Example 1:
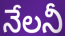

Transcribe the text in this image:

నేలనీ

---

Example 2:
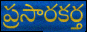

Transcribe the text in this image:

ప్రసారకర్త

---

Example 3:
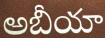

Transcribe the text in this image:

అబీయా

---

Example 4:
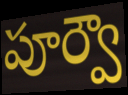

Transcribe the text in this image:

పూర్వౌ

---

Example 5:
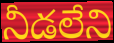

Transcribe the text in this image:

నీడలేని